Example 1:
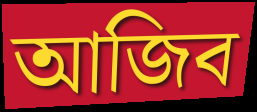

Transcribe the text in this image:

আজিব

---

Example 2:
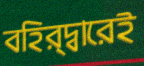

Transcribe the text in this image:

বহির্‌দ্বারেই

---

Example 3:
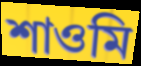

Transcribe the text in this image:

শাওমি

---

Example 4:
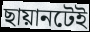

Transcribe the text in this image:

ছায়ানটেই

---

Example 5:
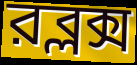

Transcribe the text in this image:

রব্লক্স